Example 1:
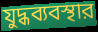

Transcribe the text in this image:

যুদ্ধব্যবস্থার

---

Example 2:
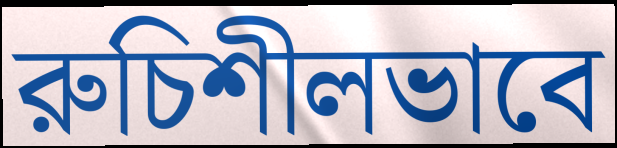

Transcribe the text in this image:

রুচিশীলভাবে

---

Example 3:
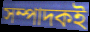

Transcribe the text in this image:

সম্পাদকই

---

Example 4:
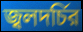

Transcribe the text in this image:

জ্বলদর্চির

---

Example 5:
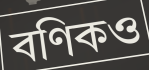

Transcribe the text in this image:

বণিকও